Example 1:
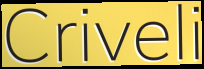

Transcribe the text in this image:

Criveli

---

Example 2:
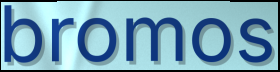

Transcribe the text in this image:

bromos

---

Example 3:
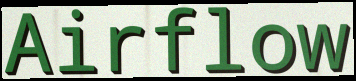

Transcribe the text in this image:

Airflow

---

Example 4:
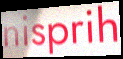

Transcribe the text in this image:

nisprih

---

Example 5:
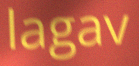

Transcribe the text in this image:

lagav